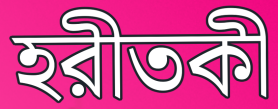
হরীতকী